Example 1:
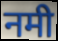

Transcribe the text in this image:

नमी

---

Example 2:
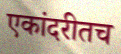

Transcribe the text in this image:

एकांदरीतच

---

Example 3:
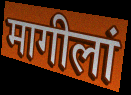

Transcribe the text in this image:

मागीलां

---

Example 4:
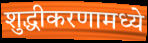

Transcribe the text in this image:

शुद्धीकरणामध्ये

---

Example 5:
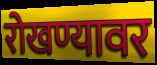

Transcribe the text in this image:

रोखण्यावर